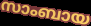
സാംബായ